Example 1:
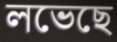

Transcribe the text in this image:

লভেছে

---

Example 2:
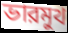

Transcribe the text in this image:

ভারমুথ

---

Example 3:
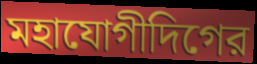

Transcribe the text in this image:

মহাযোগীদিগের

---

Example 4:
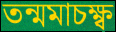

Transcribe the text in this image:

তন্মমাচক্ষ্ব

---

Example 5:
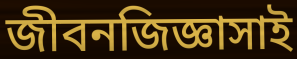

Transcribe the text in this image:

জীবনজিজ্ঞাসাই